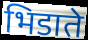
भिडाते